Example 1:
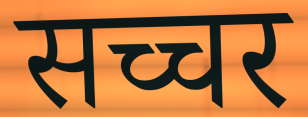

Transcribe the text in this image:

सच्चर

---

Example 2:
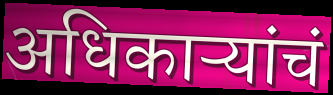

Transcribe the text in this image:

अधिकाऱ्यांचं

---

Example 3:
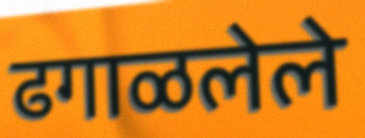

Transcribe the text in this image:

ढगाळलेले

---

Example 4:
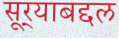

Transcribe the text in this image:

सूर्याबद्दल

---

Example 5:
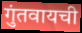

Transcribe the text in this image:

गुंतवायची